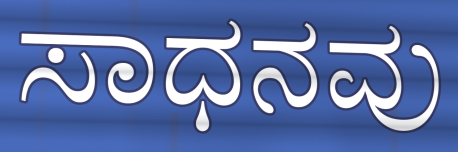
ಸಾಧನವು